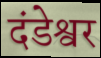
दंडेश्वर